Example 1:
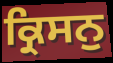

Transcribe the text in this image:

ਕ੍ਰਿਸਨੁ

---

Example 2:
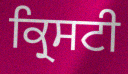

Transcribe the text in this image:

ਕ੍ਰਿਸਟੀ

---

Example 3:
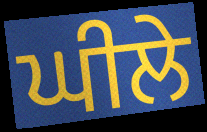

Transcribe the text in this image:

ਘੀਲੇ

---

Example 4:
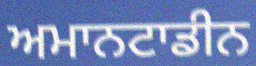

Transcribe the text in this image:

ਅਮਾਨਟਾਡੀਨ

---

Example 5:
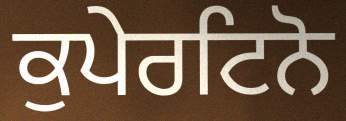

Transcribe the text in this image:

ਕੁਪੇਰਟਿਨੋ